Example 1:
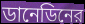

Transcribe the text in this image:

ডানেডিনের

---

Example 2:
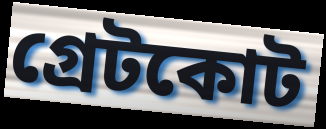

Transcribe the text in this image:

গ্রেটকোট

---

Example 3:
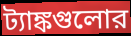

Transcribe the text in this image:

ট্যাঙ্কগুলোর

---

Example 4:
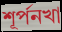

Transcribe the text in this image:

শূর্পনখা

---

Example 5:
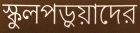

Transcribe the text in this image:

স্কুলপড়ুয়াদের